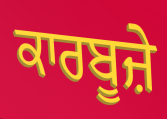
ਕਾਰਬੂਜ਼ੇ